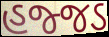
હજ્જડ